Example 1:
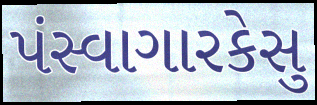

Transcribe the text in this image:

પંસ્વાગારકેસુ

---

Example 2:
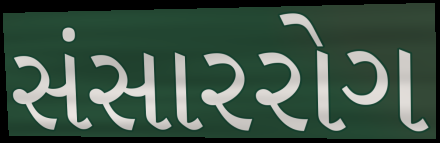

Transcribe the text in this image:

સંસારરોગ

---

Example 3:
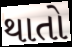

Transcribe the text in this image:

થાતો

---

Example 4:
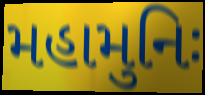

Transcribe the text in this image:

મહામુનિઃ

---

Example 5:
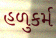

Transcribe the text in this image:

હળુકર્મ